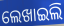
ଲେଖାଇଲି